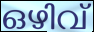
ഒഴിവ്